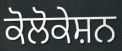
ਕੋਲੋਕੇਸ਼ਨ